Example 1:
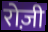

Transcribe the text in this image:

रोज़ी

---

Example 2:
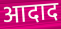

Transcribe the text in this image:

आदाद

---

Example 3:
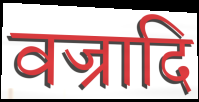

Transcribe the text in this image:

वज्रादि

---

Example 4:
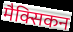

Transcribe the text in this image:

मैक्सिकन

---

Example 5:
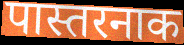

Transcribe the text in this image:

पास्तरनाक